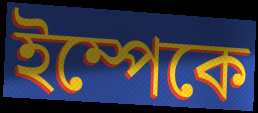
ইম্পেকে